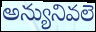
అన్యునివలె